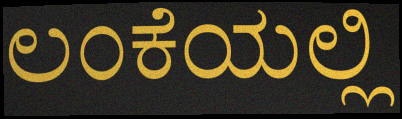
ಲಂಕೆಯಲ್ಲಿ